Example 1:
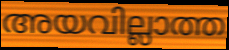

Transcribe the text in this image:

അയവില്ലാത്ത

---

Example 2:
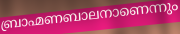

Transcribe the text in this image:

ബ്രാഹ്മണബാലനാണെന്നും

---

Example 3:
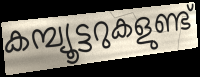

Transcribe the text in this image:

കമ്പ്യൂട്ടറുകളുണ്ട്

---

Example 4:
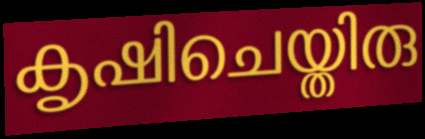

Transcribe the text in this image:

കൃഷിചെയ്തിരു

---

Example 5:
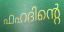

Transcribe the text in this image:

ഫഹദിന്റെ